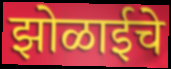
झोळाईचे